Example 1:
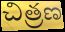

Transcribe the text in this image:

చిత్రణ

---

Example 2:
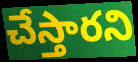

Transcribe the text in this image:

చేస్తారని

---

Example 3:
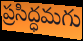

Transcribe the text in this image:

ప్రసిద్ధమగు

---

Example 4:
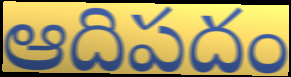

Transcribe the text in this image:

ఆదిపదం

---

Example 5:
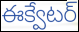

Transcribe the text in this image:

ఈక్వేటర్